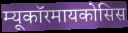
म्यूकॉरमायकोसिस